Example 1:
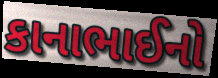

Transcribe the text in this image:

કાનાભાઈનો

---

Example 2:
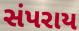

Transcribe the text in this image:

સંપરાય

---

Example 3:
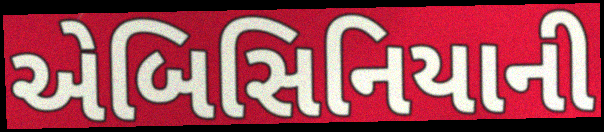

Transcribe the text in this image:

એબિસિનિયાની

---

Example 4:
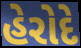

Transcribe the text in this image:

હેરોદે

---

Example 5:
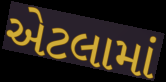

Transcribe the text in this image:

એટલામાં